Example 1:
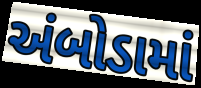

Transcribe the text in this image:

અંબોડામાં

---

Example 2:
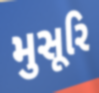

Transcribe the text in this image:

મુસૂરિ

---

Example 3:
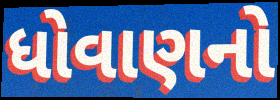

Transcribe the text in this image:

ધોવાણનો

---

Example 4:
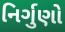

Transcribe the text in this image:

નિર્ગુણો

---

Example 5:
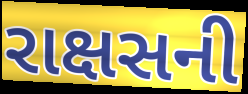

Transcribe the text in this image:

રાક્ષસની